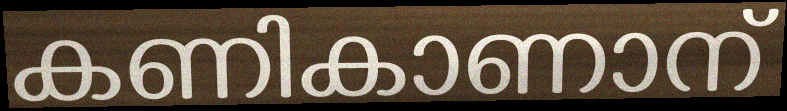
കണികാണാന്